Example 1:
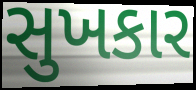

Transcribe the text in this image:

સુખકાર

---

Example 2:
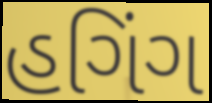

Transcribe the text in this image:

હગિંગ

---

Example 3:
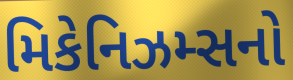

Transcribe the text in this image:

મિકેનિઝમ્સનો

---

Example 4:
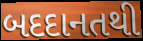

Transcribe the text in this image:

બદદાનતથી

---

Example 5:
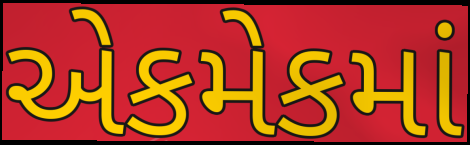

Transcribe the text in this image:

એકમેકમાં